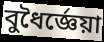
বুধৈর্জ্ঞেয়া